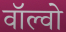
वॉल्वो